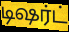
டிஷர்ட்